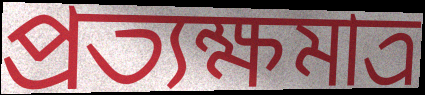
প্রত্যক্ষমাত্র